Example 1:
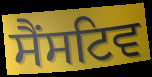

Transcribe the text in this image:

ਸੈਂਸਟਿਵ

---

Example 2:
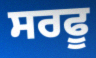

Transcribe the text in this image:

ਸਰਫੂ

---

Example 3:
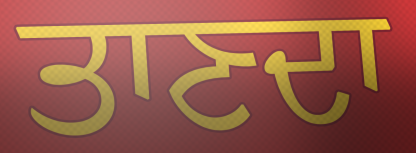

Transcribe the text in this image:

ਤਾਣਦਾ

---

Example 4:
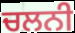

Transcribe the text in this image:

ਚਲਨੀ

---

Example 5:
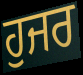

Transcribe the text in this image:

ਹੁਜਰ